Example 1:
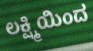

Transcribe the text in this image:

ಲಕ್ಷ್ಮಿಯಿಂದ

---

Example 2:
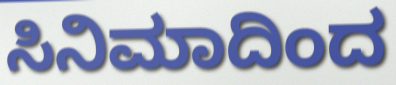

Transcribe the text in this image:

ಸಿನಿಮಾದಿಂದ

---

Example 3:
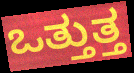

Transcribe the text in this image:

ಒತ್ತುತ್ತ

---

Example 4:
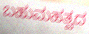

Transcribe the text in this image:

ಬಹುಮಹತ್ವದ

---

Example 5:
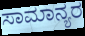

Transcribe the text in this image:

ಸಾಮಾನ್ಯರ